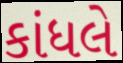
કાંધલે